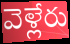
వెళ్లేరు